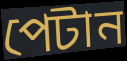
পেটান